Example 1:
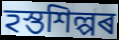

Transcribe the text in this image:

হস্তশিল্পৰ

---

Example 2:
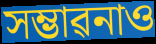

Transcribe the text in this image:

সম্ভাৱনাও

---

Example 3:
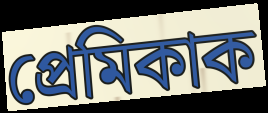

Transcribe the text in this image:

প্ৰেমিকাক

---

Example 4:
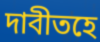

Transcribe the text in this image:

দাবীতহে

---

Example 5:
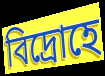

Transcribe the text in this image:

বিদ্ৰোহে